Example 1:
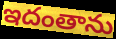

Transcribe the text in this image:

ఇదంతాను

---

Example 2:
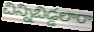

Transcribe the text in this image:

చిన్నిబిడ్డలారా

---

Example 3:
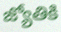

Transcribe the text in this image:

జ్యోతికి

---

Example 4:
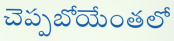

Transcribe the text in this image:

చెప్పబోయేంతలో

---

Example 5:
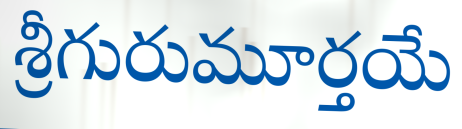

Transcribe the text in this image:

శ్రీగురుమూర్తయే